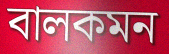
বালকমন